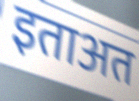
इताअत